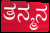
ತನ್ಮನ